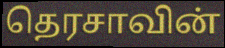
தெரசாவின்